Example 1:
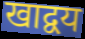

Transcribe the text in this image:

खाद्वय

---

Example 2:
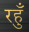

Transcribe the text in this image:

रहुँ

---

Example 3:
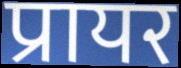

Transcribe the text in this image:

प्रायर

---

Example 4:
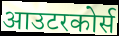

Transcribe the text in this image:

आउटरकोर्स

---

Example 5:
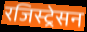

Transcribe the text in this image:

रजिस्ट्रेसन